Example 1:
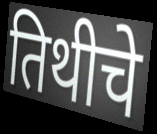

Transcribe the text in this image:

तिथीचे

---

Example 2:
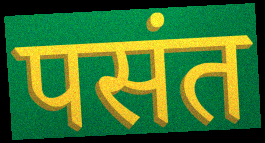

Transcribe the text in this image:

पसंत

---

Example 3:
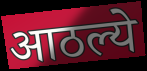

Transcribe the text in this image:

आठल्ये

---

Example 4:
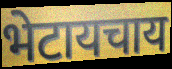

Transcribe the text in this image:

भेटायचाय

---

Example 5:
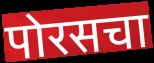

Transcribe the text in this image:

पोरसचा